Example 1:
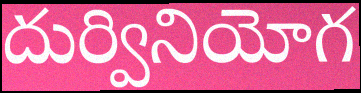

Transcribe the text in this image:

దుర్వినియోగ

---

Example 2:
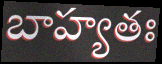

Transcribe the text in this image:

బాహ్యతః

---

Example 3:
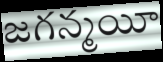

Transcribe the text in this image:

జగన్మయీ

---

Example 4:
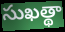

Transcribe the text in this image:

సుఖత్థా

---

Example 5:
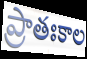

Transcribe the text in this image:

ప్రాతఃకాల